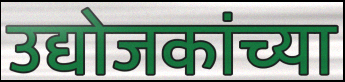
उद्योजकांच्या